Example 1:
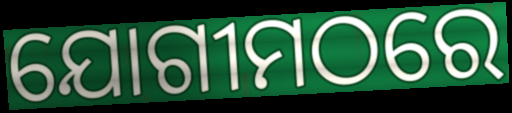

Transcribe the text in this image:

ଯୋଗୀମଠରେ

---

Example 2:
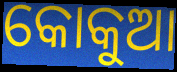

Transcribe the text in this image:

କୋକୁଆ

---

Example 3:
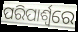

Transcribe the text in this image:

ପରିପାର୍ଶ୍ୱରେ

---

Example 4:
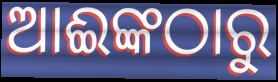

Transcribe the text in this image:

ଆଈଙ୍କଠାରୁ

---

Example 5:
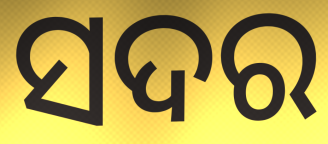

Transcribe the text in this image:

ସଦର